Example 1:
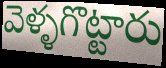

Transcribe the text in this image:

వెళ్ళగొట్టారు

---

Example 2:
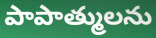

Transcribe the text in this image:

పాపాత్ములను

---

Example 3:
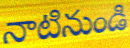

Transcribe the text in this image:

నాటినుండి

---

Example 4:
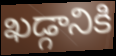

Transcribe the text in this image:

ఖడ్గానికి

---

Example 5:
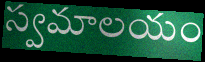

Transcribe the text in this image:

స్వమాలయం